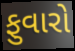
ફુવારો